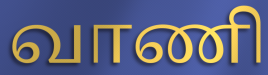
வாணி